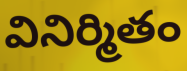
వినిర్మితం